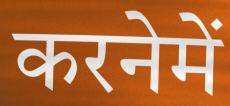
करनेमें